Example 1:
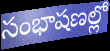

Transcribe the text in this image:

సంభాషణల్లో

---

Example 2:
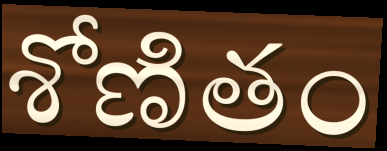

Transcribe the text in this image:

శోణితం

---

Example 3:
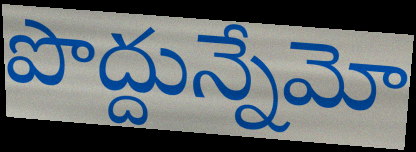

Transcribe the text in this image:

పొద్దున్నేమో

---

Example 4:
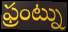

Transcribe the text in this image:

ఫ్రంట్ను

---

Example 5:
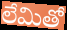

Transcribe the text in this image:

లేమితో